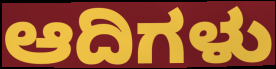
ಆದಿಗಳು